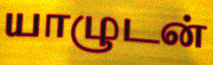
யாழுடன்